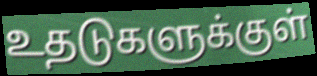
உதடுகளுக்குள்